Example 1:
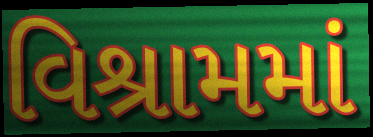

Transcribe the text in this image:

વિશ્રામમાં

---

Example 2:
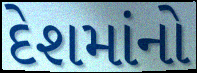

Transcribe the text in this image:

દેશમાંનો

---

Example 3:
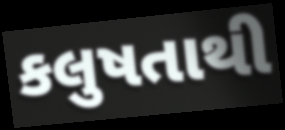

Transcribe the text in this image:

કલુષતાથી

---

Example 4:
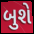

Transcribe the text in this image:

બુશે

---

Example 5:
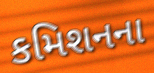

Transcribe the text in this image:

કમિશનના